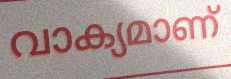
വാക്യമാണ്